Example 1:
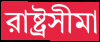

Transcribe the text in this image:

রাষ্ট্রসীমা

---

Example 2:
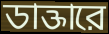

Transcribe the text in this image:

ডাক্তারে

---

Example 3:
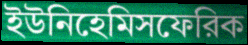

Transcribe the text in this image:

ইউনিহেমিসফেরিক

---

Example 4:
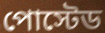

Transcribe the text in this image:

পোস্টেড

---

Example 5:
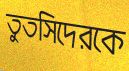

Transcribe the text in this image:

তুতসিদেরকে